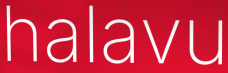
halavu